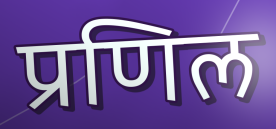
प्रणिल